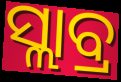
ସ୍ଲାବ୍ର